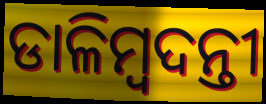
ଡାଳିମ୍ବଦନ୍ତୀ